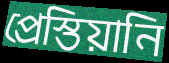
প্রেস্তিয়ানি